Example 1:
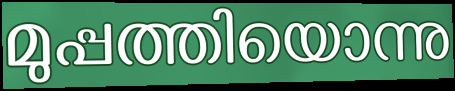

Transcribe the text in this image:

മുപ്പത്തിയൊന്നു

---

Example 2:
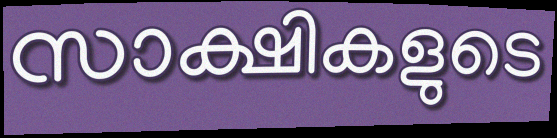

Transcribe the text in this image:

സാക്ഷികളുടെ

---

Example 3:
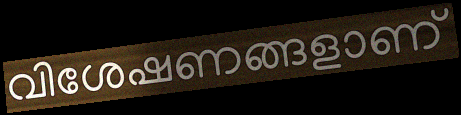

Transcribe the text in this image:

വിശേഷണങ്ങളാണ്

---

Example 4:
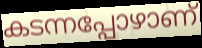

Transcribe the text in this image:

കടന്നപ്പോഴാണ്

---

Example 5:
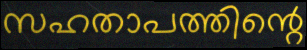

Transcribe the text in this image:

സഹതാപത്തിന്റെ